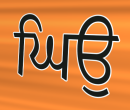
ਘਿਉ